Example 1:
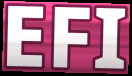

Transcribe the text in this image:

EFI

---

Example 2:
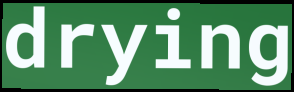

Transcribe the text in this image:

drying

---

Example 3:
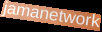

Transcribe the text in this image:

jamanetwork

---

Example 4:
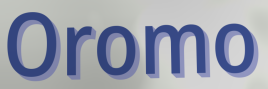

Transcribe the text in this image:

Oromo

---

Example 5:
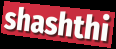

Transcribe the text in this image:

shashthi